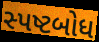
સ્પષ્ટબોધ